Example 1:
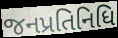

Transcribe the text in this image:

જનપ્રતિનિધિ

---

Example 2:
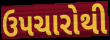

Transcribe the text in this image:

ઉપચારોથી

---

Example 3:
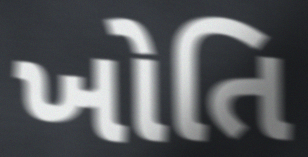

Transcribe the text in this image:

ખોતિ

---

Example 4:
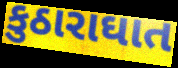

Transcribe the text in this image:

કુઠારાઘાત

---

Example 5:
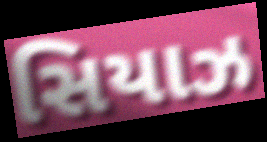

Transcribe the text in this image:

સિયાઝ